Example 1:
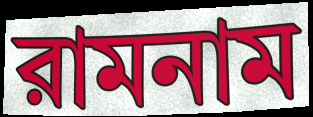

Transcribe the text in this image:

রামনাম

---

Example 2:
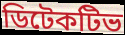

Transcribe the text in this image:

ডিটেকটিভ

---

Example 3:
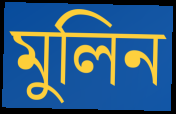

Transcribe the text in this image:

মুলিন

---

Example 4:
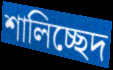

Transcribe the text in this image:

শালিচ্ছেদ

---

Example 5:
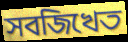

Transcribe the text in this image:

সবজিখেত